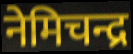
नेमिचन्द्र